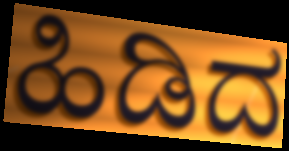
ಹಿಡಿದ